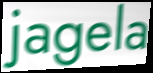
jagela